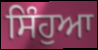
ਸਿੰਹੁਆ